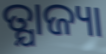
ତ୍ଯାଜ୍ୟା